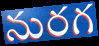
నురగ